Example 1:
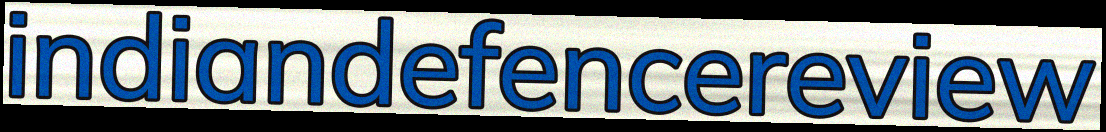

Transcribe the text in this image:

indiandefencereview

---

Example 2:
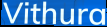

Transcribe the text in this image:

Vithura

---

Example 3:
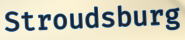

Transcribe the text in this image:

Stroudsburg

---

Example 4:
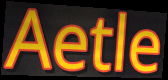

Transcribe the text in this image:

Aetle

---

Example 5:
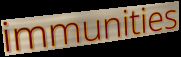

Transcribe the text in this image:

immunities